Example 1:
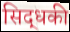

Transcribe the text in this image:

सिद्धकी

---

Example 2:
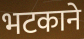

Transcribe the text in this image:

भटकाने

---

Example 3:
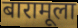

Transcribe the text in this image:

बारामूला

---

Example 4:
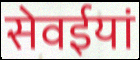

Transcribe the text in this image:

सेवईयां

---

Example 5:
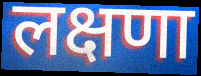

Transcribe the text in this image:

लक्षणा